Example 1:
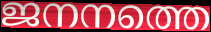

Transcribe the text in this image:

ജനനത്തെ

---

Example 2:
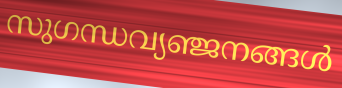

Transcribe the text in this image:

സുഗന്ധവ്യഞ്ജനങ്ങൾ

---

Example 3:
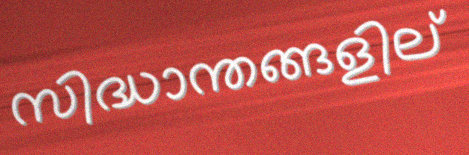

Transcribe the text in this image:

സിദ്ധാന്തങ്ങളില്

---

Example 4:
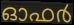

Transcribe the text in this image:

ഓഫർ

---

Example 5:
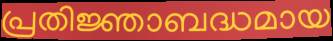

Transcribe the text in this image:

പ്രതിജ്ഞാബദ്ധമായ